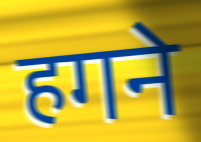
हगने